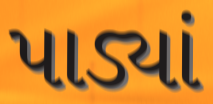
પાડ્યાં